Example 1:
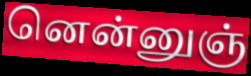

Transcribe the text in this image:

னென்னுஞ்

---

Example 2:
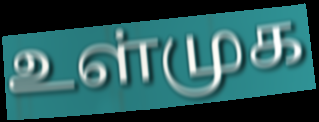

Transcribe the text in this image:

உள்முக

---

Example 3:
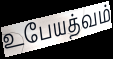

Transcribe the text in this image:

உபேயத்வம்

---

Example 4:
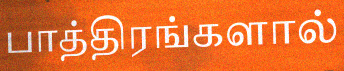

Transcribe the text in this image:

பாத்திரங்களால்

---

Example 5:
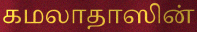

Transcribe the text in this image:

கமலாதாஸின்